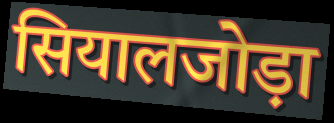
सियालजोड़ा